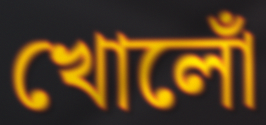
খোলোঁ